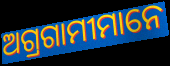
ଅଗ୍ରଗାମୀମାନେ